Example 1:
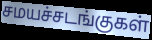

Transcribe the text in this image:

சமயச்சடங்குகள்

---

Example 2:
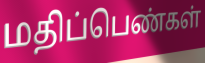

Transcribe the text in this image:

மதிப்பெண்கள்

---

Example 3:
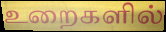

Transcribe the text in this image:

உறைகளில்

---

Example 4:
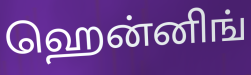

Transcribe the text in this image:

ஹென்னிங்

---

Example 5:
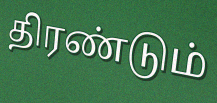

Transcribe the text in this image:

திரண்டும்